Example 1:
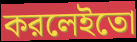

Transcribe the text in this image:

করলেইতো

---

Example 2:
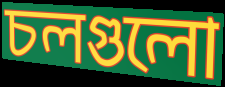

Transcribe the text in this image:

চলগুলো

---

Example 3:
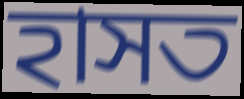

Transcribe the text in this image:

হাসত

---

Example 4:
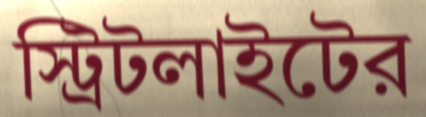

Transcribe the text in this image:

স্ট্রিটলাইটের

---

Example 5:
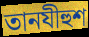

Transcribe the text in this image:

তানযীহুশ